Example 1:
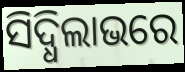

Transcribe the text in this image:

ସିଦ୍ଧିଲାଭରେ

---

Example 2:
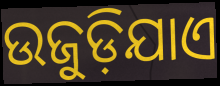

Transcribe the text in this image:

ଉଜୁଡ଼ିଯାଏ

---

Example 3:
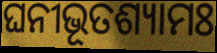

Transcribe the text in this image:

ଘନୀଭୂତଶ୍ୟାମଃ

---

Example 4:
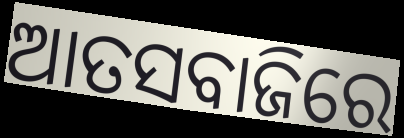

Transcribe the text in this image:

ଆତସବାଜିରେ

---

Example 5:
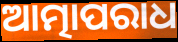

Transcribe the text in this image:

ଆତ୍ମାପରାଧ